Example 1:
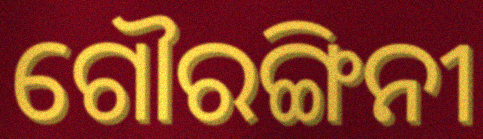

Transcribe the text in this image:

ଗୌରଙ୍ଗିନୀ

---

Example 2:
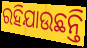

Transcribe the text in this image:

ରହିଯାଉଛନ୍ତି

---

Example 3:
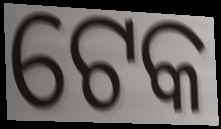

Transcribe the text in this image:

ଟେକ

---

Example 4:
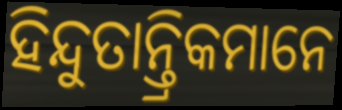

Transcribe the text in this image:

ହିନ୍ଦୁତାନ୍ତ୍ରିକମାନେ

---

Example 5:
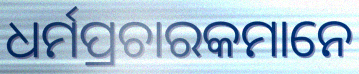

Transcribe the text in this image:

ଧର୍ମପ୍ରଚାରକମାନେ